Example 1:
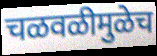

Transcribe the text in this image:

चळवळीमुळेच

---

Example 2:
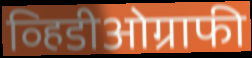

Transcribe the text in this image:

व्हिडीओग्राफी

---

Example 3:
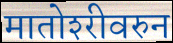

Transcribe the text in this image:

मातोश्रीवरुन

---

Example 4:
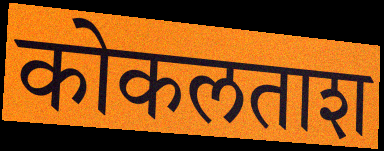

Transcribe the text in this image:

कोकलताश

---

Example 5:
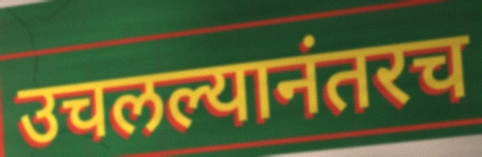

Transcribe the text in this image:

उचलल्यानंतरच